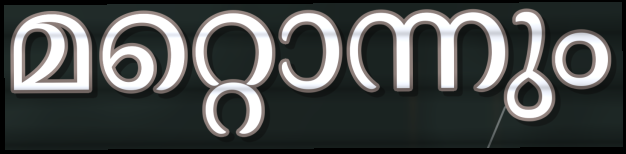
മറ്റൊന്നും